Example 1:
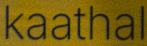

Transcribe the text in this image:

kaathal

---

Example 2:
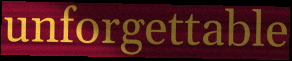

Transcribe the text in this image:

unforgettable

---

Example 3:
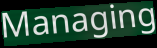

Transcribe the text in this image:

Managing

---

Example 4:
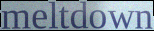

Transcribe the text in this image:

meltdown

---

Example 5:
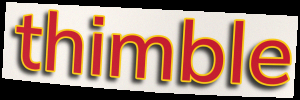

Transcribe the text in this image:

thimble